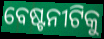
ବେଷ୍ଟନୀଟିକୁ